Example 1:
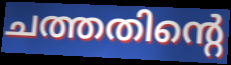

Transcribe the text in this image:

ചത്തതിന്റെ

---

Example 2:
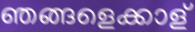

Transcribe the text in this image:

ഞങ്ങളെക്കാള്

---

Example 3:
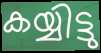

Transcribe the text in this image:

കയ്യിട്ടു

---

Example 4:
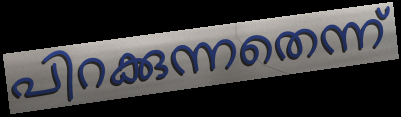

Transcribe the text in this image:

പിറക്കുന്നതെന്ന്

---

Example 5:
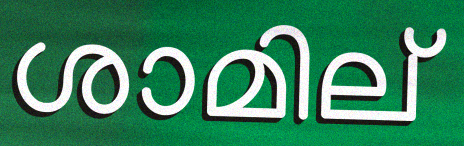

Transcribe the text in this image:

ശാമില്